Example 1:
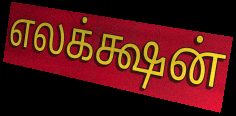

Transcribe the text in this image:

எலக்க்ஷன்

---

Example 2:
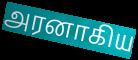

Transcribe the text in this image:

அரனாகிய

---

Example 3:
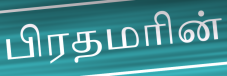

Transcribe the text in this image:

பிரதமரின்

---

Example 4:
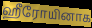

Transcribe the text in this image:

ஹீரோயினாக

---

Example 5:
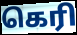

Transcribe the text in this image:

கெரி